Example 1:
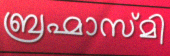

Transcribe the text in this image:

ബ്രഹ്മാസ്മി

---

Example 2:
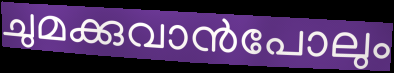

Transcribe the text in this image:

ചുമക്കുവാൻപോലും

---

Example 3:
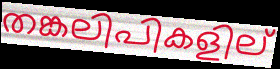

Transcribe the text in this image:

തങ്കലിപികളില്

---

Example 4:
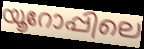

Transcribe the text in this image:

യൂറോപ്പിലെ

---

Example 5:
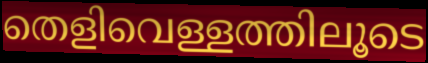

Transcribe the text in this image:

തെളിവെള്ളത്തിലൂടെ